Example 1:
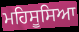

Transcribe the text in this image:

ਮਹਿਸੂਸਿਆ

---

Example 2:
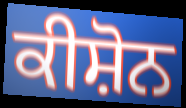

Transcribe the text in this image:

ਕੀਸ਼ੋਨ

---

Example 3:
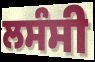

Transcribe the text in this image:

ਲਸੰਸੀ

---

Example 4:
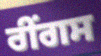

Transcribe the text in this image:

ਰੀਂਗਸ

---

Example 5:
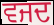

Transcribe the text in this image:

ਵਜਦ